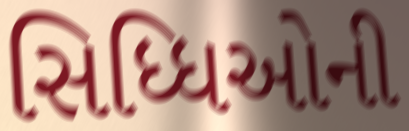
સિધ્ધિઓની